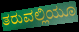
ತರುವಲ್ಲಿಯೂ